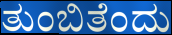
ತುಂಬಿತೆಂದು